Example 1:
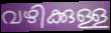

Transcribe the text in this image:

വഴിക്കുള്ള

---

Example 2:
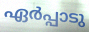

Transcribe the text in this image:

ഏർപ്പാടു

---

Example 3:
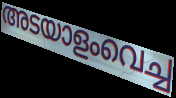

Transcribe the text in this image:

അടയാളംവെച്ച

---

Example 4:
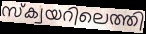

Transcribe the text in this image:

സ്ക്വയറിലെത്തി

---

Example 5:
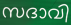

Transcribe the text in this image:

സദാവി